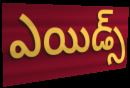
ఎయిడ్స్